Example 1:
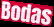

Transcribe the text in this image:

Bodas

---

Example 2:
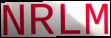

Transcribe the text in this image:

NRLM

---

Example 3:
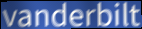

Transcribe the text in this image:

vanderbilt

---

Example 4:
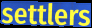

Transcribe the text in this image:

settlers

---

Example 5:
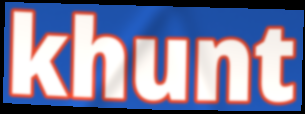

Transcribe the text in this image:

khunt